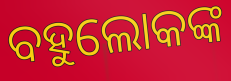
ବହୁଲୋକଙ୍କ